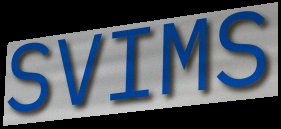
SVIMS